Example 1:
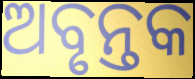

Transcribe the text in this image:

ଅବୃନ୍ତକ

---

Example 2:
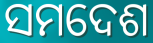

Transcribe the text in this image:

ସମଦେଶ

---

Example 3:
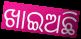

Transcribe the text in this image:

ଖାଇଅଛି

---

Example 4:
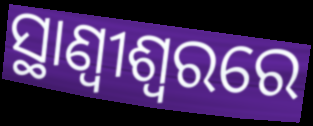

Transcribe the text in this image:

ସ୍ଥାଣ୍ୱୀଶ୍ୱରରେ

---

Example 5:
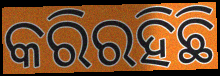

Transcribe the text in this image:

କରିରହିଛି